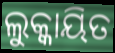
ଲୁକ୍କାୟିତ